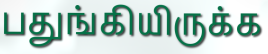
பதுங்கியிருக்க